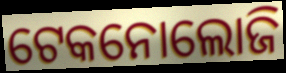
ଟେକନୋଲୋଜି